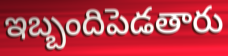
ఇబ్బందిపెడతారు